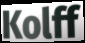
Kolff